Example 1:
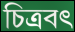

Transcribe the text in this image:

চিত্ৰবৎ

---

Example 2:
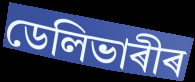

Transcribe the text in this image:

ডেলিভাৰীৰ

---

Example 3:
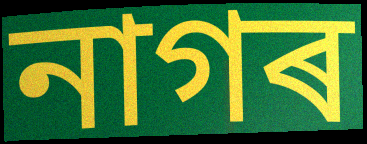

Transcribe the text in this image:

নাগৰ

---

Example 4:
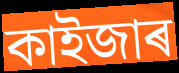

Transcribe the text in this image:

কাইজাৰ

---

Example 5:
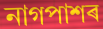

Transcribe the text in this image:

নাগপাশৰ